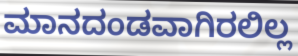
ಮಾನದಂಡವಾಗಿರಲಿಲ್ಲ